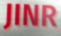
JINR